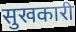
सुखकारी